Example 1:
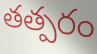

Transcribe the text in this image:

తత్పరం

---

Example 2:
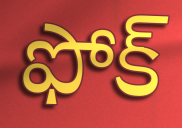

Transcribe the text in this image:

ఫోక్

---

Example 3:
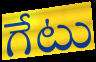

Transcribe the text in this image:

గేటు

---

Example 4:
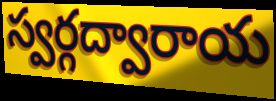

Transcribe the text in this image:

స్వర్గద్వారాయ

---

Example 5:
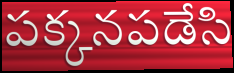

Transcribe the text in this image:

పక్కనపడేసి